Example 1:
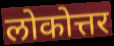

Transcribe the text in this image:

लोकोत्तर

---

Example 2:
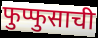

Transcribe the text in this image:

फुप्फुसाची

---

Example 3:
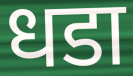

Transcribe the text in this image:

धडा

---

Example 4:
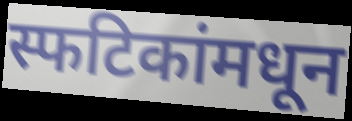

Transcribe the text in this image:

स्फटिकांमधून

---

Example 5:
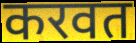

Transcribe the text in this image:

करवत